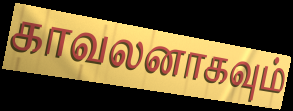
காவலனாகவும்